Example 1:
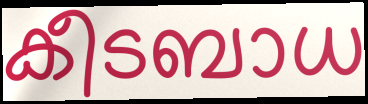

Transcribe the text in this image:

കീടബാധ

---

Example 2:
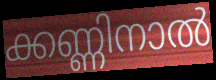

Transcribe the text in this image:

ക്കണ്ണിനാൽ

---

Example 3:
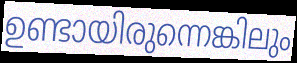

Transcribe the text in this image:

ഉണ്ടായിരുന്നെങ്കിലും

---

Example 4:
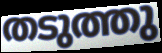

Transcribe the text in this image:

തടുത്തു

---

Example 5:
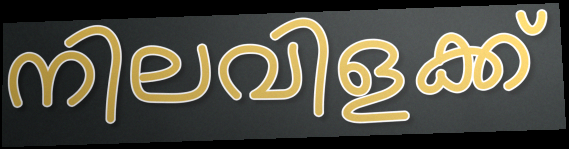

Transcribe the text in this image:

നിലവിളക്ക്